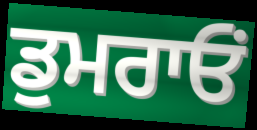
ਡੁਮਰਾਓਂ